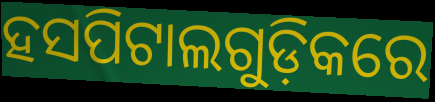
ହସପିଟାଲଗୁଡ଼ିକରେ